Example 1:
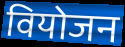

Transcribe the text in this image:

वियोजन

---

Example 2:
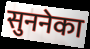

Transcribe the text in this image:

सुननेका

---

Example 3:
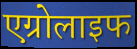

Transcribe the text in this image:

एग्रोलाइफ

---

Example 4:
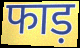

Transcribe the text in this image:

फाड़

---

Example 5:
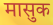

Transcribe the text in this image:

मासुक